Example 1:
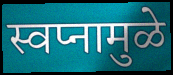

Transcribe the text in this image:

स्वप्नामुळे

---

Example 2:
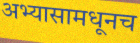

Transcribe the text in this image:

अभ्यासामधूनच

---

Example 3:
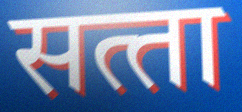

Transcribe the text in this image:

सत्‍ता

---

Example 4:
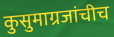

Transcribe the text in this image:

कुसुमाग्रजांचीच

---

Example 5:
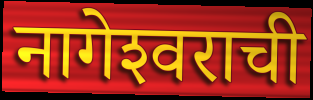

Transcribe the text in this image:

नागेश्‍वराची